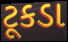
ટૂકડા